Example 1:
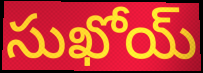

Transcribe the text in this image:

సుఖోయ్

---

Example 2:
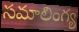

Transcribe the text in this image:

సమాలింగ్య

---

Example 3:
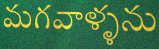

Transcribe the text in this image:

మగవాళ్ళను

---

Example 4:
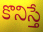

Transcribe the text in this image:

కొనిస్తే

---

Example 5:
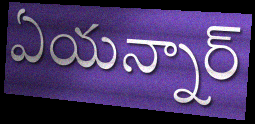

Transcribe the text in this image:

ఏయన్నార్